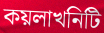
কয়লাখনিটি